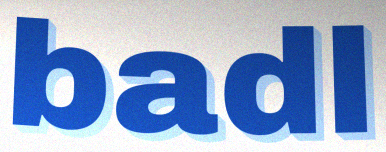
badl